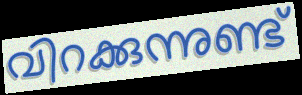
വിറക്കുന്നുണ്ട്